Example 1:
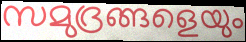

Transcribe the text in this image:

സമുദ്രങ്ങളെയും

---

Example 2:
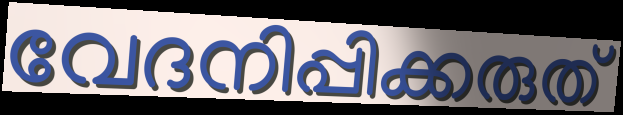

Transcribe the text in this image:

വേദനിപ്പിക്കരുത്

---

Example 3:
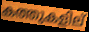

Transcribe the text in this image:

കത്തുകളില്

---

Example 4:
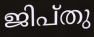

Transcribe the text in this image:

ജിപ്തു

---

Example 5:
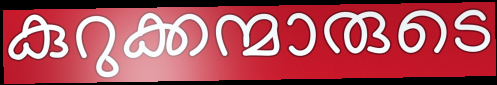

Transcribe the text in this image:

കുറുക്കന്മാരുടെ